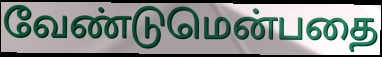
வேண்டுமென்பதை